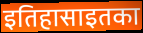
इतिहासाइतका